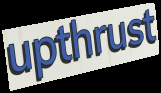
upthrust